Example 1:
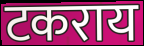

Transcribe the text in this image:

टकराय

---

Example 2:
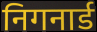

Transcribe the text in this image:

निगनार्ड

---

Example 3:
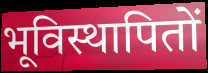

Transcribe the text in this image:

भूविस्थापितों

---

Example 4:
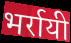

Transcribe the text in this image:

भर्रायी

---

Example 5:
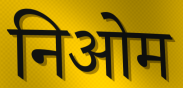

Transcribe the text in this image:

निओम